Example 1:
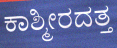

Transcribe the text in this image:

ಕಾಶ್ಮೀರದತ್ತ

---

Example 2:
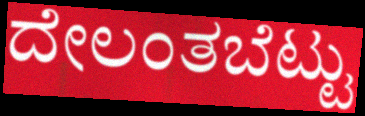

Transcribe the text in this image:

ದೇಲಂತಬೆಟ್ಟು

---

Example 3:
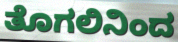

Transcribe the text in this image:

ತೊಗಲಿನಿಂದ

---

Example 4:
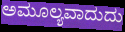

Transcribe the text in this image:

ಅಮೂಲ್ಯವಾದುದು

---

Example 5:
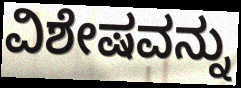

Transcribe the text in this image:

ವಿಶೇಷವನ್ನು